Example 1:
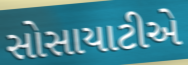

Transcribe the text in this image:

સોસાયાટીએ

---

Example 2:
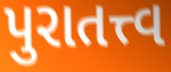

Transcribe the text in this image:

પુરાતત્ત્વ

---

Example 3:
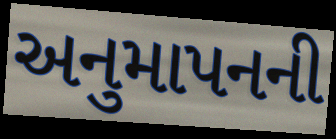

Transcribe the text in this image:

અનુમાપનની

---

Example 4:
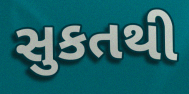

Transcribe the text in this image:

સુકતથી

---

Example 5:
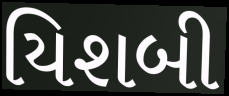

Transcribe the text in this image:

યિશબી